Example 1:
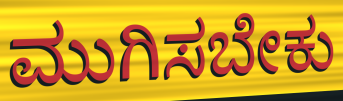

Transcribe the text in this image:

ಮುಗಿಸಬೇಕು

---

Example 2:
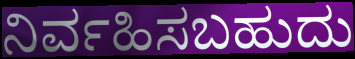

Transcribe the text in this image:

ನಿರ್ವಹಿಸಬಹುದು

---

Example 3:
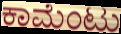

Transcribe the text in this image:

ಕಾಮೆಂಟು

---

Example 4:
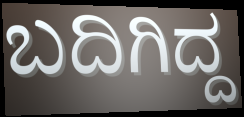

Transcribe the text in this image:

ಬದಿಗಿದ್ದ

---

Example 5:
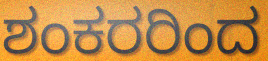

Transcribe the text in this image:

ಶಂಕರರಿಂದ